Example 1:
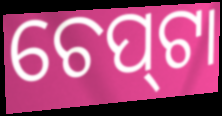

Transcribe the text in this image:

ଚେପ୍‍ଟା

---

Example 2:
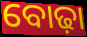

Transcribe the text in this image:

ବୋଢ଼ା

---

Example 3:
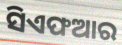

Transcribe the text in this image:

ସିଏଫଆର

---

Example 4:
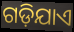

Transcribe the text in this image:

ଗଡ଼ିଯାଏ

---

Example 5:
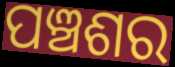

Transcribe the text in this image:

ପଞ୍ଚଶର